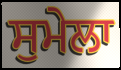
ਸੁਮੇਲਾ